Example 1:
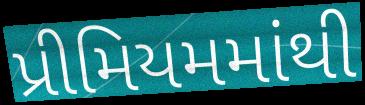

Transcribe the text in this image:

પ્રીમિયમમાંથી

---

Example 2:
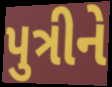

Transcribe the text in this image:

પુત્રીને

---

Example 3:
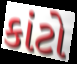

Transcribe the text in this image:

કાંટો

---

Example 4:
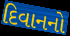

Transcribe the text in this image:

દિવાનનો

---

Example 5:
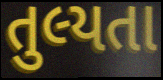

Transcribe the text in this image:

તુલ્યતા